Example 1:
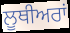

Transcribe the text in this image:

ਲੂਥੀਅਰਾਂ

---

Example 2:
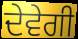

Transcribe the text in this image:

ਦੇਵੇਗੀ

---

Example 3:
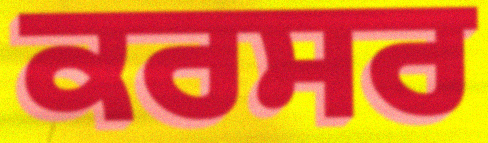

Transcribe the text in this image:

ਕਰਸਰ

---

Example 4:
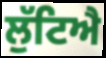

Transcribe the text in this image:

ਲੁੱਟਿਐ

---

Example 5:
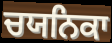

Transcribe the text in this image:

ਚਯਨਿਕਾ